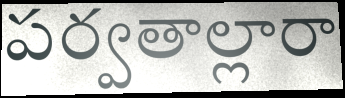
పర్వతాల్లారా